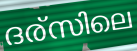
ദര്സിലെ